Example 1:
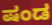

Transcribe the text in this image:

ಷಂಡ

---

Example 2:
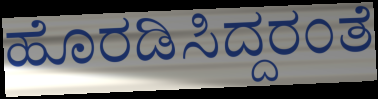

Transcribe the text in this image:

ಹೊರಡಿಸಿದ್ದರಂತೆ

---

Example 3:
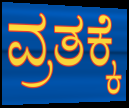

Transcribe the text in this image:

ವ್ರತಕ್ಕೆ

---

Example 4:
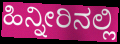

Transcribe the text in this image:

ಹಿನ್ನೀರಿನಲ್ಲಿ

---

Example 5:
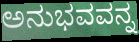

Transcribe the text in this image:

ಅನುಭವವನ್ನ